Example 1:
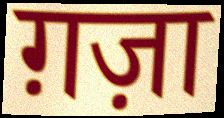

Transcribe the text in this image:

ग़ज़ा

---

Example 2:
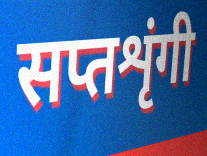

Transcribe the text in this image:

सप्तशृंगी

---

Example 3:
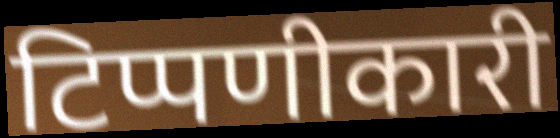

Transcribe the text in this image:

टिप्पणीकारी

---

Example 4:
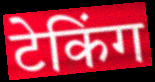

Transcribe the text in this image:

टेकिंग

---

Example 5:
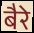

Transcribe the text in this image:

बैरे